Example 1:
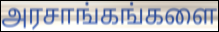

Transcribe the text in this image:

அரசாங்கங்களை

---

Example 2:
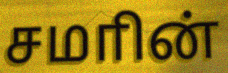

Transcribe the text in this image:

சமரின்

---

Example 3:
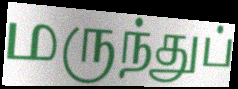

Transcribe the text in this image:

மருந்துப்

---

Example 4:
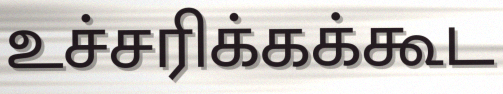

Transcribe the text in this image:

உச்சரிக்கக்கூட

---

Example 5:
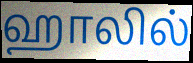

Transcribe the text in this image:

ஹாலில்